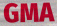
GMA